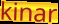
kinar